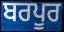
ਬਰਪੂਰ